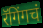
रॅगिंगचं